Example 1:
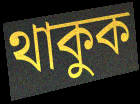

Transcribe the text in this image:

থাকুক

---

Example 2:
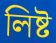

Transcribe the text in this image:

লিষ্ট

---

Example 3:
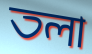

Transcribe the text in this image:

তলা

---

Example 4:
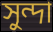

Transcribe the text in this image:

সুন্দা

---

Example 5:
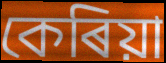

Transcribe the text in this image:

কেৰিয়া